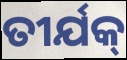
ତୀର୍ଯକ୍